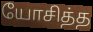
யோசித்த